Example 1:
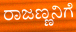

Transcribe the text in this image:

ರಾಜಣ್ಣನಿಗೆ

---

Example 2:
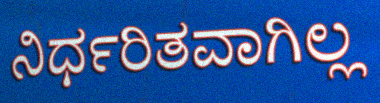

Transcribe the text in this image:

ನಿರ್ಧರಿತವಾಗಿಲ್ಲ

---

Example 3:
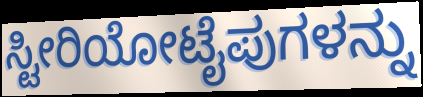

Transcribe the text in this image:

ಸ್ಟೀರಿಯೋಟೈಪುಗಳನ್ನು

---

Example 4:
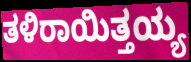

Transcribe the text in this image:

ತಳಿರಾಯಿತ್ತಯ್ಯ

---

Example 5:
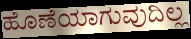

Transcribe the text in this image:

ಹೊಣೆಯಾಗುವುದಿಲ್ಲ